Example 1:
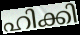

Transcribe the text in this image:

ഹിക്കി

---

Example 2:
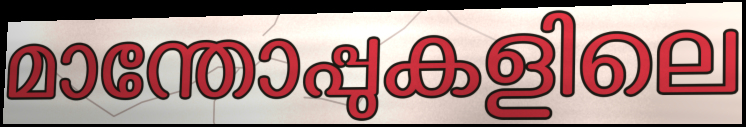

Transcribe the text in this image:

മാന്തോപ്പുകളിലെ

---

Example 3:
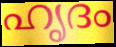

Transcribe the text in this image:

ഹൃദം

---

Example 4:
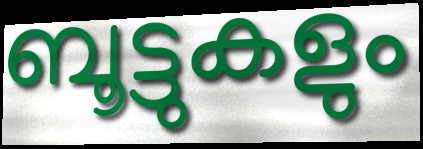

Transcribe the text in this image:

ബൂട്ടുകളും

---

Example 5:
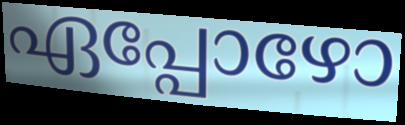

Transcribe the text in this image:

ഏപ്പോഴോ